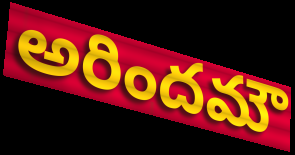
అరిందమౌ